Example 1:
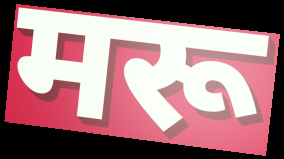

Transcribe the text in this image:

मरू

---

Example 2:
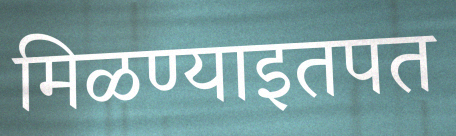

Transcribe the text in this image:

मिळण्याइतपत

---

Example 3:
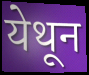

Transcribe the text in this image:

येथून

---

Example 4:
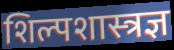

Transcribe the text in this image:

शिल्पशास्त्रज्ञ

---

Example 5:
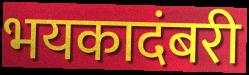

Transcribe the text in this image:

भयकादंबरी